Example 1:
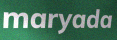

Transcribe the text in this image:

maryada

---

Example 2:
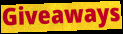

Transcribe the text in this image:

Giveaways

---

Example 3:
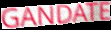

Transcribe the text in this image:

GANDATE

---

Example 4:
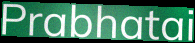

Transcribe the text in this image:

Prabhatai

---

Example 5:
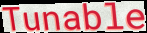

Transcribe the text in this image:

Tunable